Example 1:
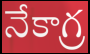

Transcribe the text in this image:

నేకాగ్ర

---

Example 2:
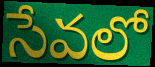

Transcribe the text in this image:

సేవలో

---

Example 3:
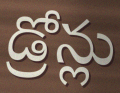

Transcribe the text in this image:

డ్రోన్లు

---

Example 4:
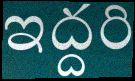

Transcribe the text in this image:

ఇద్దరి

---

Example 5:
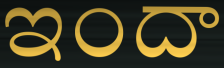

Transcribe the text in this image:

ఇందా